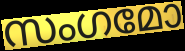
സംഗമോ